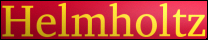
Helmholtz